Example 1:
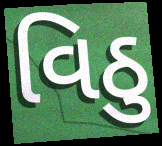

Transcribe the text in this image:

વિઠુ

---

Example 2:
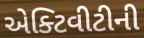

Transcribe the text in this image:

એક્ટિવીટીની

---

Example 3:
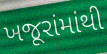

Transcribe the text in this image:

ખજૂરાંમાંથી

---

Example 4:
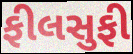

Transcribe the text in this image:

ફીલસુફી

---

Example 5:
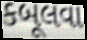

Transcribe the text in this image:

કબૂલવા